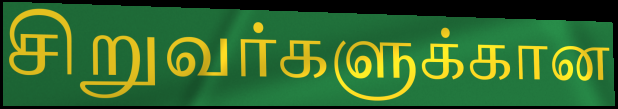
சிறுவர்களுக்கான